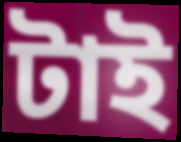
টাই